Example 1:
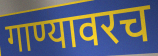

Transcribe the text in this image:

गाण्यावरच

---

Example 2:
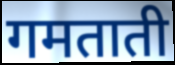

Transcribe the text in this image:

गमताती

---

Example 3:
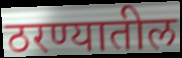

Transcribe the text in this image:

ठरण्यातील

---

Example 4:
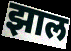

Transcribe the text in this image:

झाल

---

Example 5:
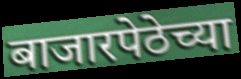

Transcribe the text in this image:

बाजारपेठेच्या